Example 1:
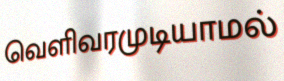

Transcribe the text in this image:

வெளிவரமுடியாமல்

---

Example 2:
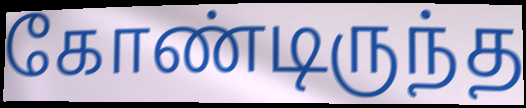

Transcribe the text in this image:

கோண்டிருந்த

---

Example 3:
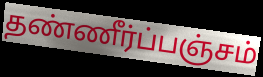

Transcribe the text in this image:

தண்ணீர்ப்பஞ்சம்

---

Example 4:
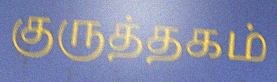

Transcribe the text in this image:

குருத்தகம்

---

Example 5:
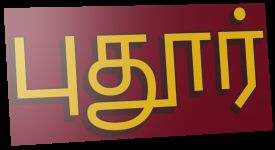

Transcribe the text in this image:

புதூர்